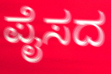
ಪೈಸದ